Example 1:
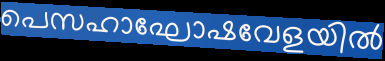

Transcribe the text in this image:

പെസഹാഘോഷവേളയിൽ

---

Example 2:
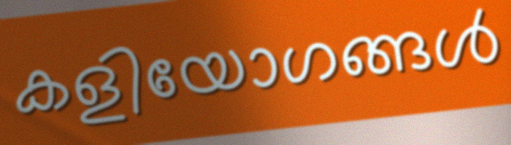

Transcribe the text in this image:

കളിയോഗങ്ങൾ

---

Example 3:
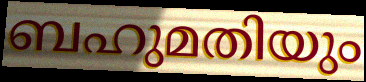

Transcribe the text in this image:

ബഹുമതിയും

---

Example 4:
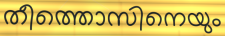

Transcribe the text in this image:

തീത്തൊസിനെയും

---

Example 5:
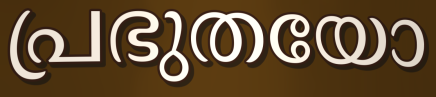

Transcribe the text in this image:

പ്രഭുതയോ